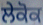
ਲੇਕੋਕ